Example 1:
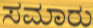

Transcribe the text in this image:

ಸಮಾರು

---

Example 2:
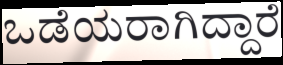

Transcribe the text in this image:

ಒಡೆಯರಾಗಿದ್ದಾರೆ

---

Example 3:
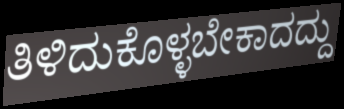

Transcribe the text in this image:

ತಿಳಿದುಕೊಳ್ಳಬೇಕಾದದ್ದು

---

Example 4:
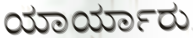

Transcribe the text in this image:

ಯಾರ್ಯಾರು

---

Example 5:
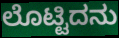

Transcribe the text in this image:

ಲೊಟ್ಟಿದನು